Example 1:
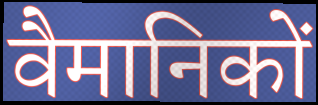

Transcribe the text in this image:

वैमानिकों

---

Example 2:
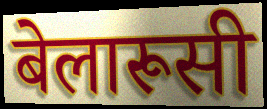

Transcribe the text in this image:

बेलारूसी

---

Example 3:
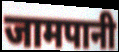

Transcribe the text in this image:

जामपानी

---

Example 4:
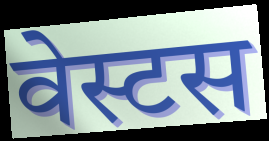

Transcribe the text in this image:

वेस्टस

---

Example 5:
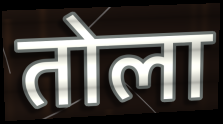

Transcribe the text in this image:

तोला